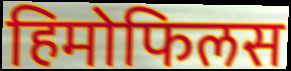
हिमोफिलस